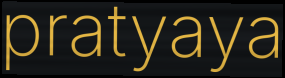
pratyaya